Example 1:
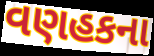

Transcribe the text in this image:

વણહકના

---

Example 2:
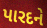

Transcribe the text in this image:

પારદને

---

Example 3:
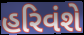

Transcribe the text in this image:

હરિવંશે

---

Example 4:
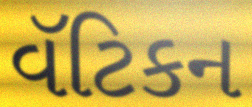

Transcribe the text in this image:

વૅટિકન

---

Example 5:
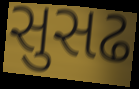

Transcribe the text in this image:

સુસઢ